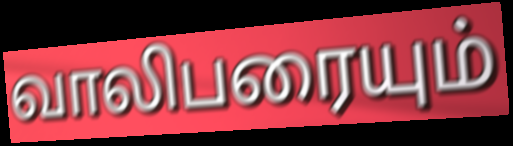
வாலிபரையும்